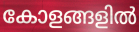
കോളങ്ങളിൽ